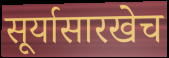
सूर्यासारखेच